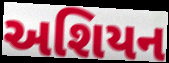
અશિયન